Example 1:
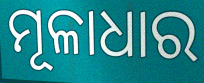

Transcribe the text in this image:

ମୂଳାଧାର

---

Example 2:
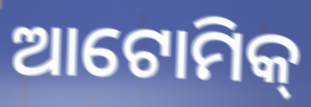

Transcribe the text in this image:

ଆଟୋମିକ୍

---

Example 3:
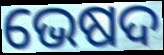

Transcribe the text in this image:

ଭେଷଦ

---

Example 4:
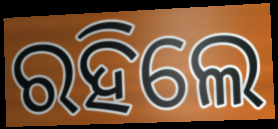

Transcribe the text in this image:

ରହିଲେ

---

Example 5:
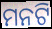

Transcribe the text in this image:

ମନଟି